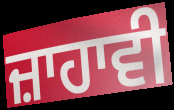
ਜ਼ਾਹਾਵੀ